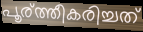
പൂര്ത്തീകരിച്ചത്